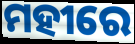
ମହୀରେ